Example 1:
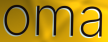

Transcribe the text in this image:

oma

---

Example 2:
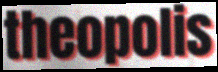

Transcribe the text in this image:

theopolis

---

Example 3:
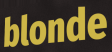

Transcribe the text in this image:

blonde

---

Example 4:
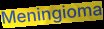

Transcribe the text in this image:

Meningioma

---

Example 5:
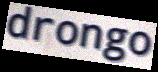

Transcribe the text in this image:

drongo